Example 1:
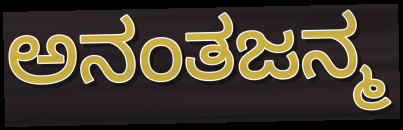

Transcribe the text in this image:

ಅನಂತಜನ್ಮ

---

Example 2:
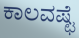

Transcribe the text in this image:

ಕಾಲವಷ್ಟೆ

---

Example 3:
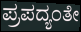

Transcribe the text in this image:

ಪ್ರಪದ್ಯಂತೇ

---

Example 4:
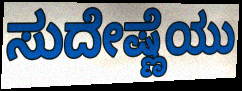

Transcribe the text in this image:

ಸುದೇಷ್ಣೆಯು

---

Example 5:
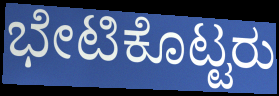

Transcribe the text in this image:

ಭೇಟಿಕೊಟ್ಟರು